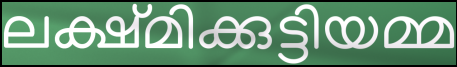
ലക്ഷ്മിക്കുട്ടിയമ്മ